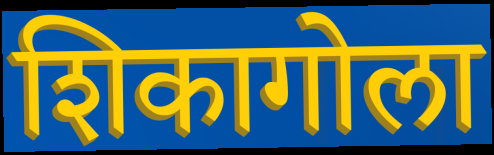
शिकागोला